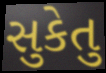
સુકેતુ